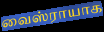
வைஸ்ராயாக